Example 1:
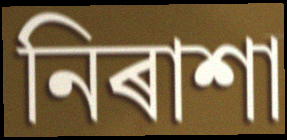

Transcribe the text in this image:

নিৰাশা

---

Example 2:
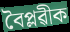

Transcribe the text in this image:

বৈপ্লৱীক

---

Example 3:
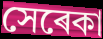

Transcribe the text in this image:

সেৰেকা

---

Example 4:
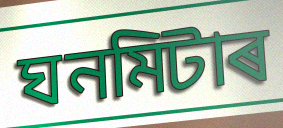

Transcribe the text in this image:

ঘনমিটাৰ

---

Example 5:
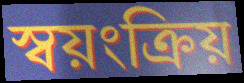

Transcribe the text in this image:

স্বয়ংক্ৰিয়